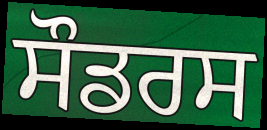
ਸੌਡਰਸ